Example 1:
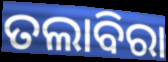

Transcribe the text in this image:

ତଲାବିରା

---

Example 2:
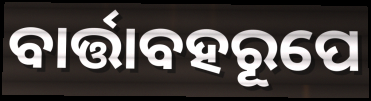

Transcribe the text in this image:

ବାର୍ତ୍ତାବହରୂପେ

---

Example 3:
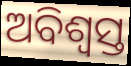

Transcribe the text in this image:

ଅବିଶ୍ୱସ୍ତ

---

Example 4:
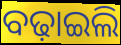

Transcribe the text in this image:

ବଢ଼ାଇଲି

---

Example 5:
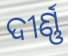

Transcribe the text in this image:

ଦୀର୍ଣ୍ଣ